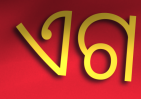
ଏଗ